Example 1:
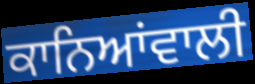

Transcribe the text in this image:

ਕਾਨਿਆਂਵਾਲੀ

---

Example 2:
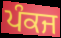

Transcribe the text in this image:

ਪੰਕਜ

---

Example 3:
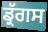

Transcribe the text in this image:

ਡ੍ਰੱਗਸ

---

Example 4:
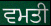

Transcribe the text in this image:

ਵਮਤੀ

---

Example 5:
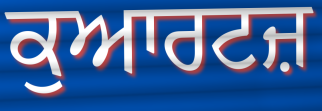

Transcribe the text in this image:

ਕੁਆਰਟਜ਼